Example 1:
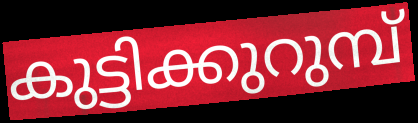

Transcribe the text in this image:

കുട്ടിക്കുറുമ്പ്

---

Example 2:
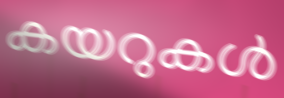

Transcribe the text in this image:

കയറുകൾ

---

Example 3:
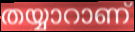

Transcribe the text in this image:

തയ്യാറാണ്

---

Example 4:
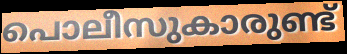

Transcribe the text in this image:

പൊലീസുകാരുണ്ട്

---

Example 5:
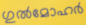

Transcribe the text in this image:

ഗുൽമോഹർ